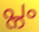
പ്നം